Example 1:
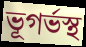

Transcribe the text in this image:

ভূগর্ভস্থ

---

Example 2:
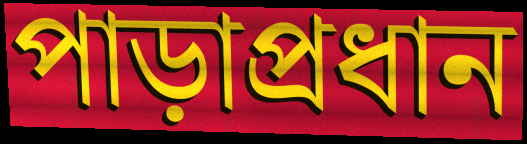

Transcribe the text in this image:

পাড়াপ্রধান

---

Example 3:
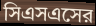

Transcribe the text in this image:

সিএসএসের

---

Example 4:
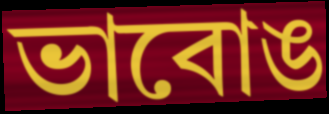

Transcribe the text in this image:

ভাবোঙ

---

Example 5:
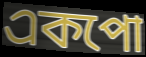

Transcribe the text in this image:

একপো